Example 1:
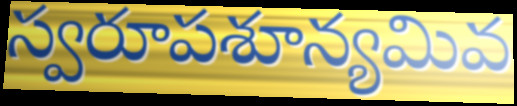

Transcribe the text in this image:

స్వరూపశూన్యమివ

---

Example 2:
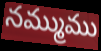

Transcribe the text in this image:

నమ్ముము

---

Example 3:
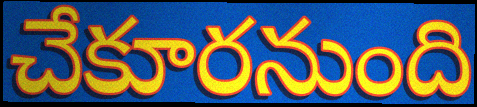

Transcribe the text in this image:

చేకూరనుంది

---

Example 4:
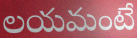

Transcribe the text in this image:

లయమంటే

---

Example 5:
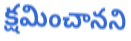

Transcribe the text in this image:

క్షమించానని